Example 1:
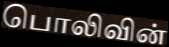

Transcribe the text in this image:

பொலிவின்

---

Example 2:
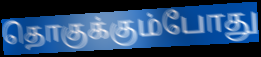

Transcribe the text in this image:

தொகுக்கும்போது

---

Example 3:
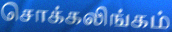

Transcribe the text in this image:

சொக்கலிங்கம்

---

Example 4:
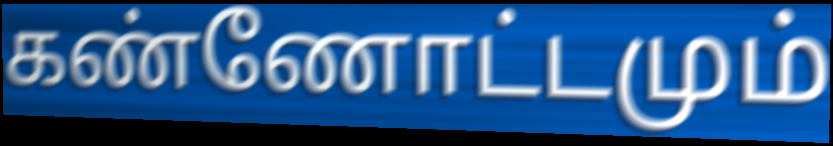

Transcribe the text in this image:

கண்ணோட்டமும்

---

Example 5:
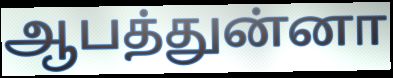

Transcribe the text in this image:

ஆபத்துன்னா